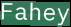
Fahey